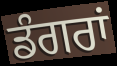
ਡੰਗਰਾਂ